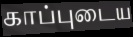
காப்புடைய